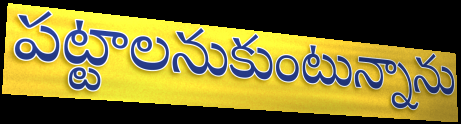
పట్టాలనుకుంటున్నాను